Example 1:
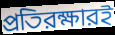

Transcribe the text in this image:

প্রতিরক্ষারই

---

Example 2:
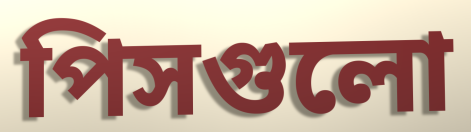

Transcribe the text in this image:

পিসগুলো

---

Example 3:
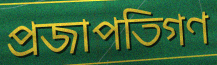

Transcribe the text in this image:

প্রজাপতিগণ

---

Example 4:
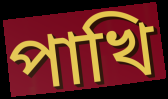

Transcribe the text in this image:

পাখি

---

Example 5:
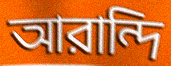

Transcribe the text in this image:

আরান্দি